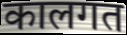
कालगत